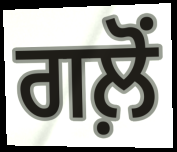
ਗਲ਼ੋਂ